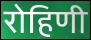
रोहिणी